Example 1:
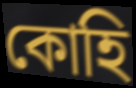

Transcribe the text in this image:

কোহি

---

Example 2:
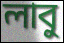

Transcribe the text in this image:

লাবু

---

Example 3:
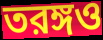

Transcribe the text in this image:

তরঙ্গও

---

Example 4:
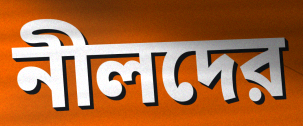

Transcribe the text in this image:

নীলদের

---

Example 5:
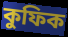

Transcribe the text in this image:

কুফিক